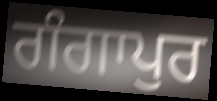
ਗੰਗਾਪੁਰ